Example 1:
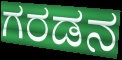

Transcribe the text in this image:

ಗರಡನ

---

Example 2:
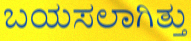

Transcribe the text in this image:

ಬಯಸಲಾಗಿತ್ತು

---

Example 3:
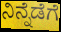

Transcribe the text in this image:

ನಿನ್ನೆಡೆಗೆ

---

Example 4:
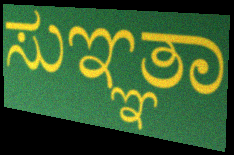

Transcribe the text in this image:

ಸುಞ್ಞತಾ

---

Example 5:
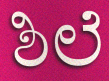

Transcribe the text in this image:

ಶಿಲೆ